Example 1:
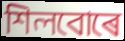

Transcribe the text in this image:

শিলবোৰে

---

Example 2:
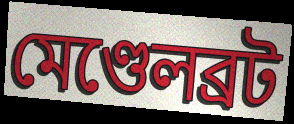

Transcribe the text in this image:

মেণ্ডেলব্ৰট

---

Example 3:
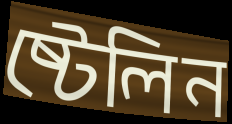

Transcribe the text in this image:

ষ্টেলিন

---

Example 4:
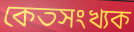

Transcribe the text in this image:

কেতসংখ্যক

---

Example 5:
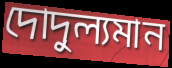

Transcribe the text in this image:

দোদুল্যমান